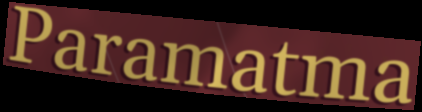
Paramatma